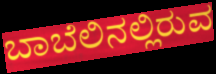
ಬಾಬೆಲಿನಲ್ಲಿರುವ